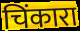
चिंकारा